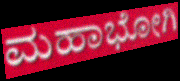
ಮಹಾಭೋಗಿ